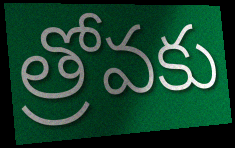
త్రోవకు